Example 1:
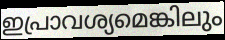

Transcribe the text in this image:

ഇപ്രാവശ്യമെങ്കിലും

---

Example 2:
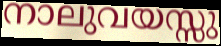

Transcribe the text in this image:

നാലുവയസ്സു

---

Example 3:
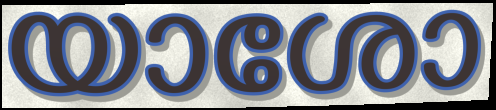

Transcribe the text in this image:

യാശോ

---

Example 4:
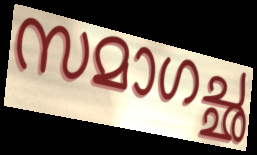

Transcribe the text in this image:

സമാഗച്ഛ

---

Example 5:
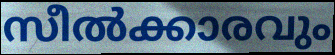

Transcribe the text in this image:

സീൽക്കാരവും